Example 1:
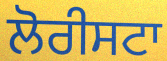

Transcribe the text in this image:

ਲੋਰੀਸਟਾ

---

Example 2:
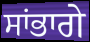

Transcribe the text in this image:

ਸਾਂਭਾਗੇ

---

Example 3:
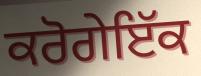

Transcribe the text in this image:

ਕਰੋਗੇਇੱਕ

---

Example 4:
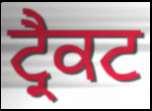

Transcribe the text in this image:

ਟ੍ਰੈਕਟ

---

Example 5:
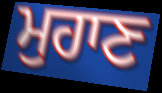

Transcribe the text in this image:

ਮੁਹਾਣ